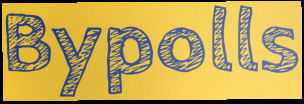
Bypolls